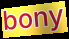
bony